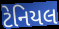
ટેનિયલ